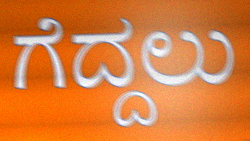
ಗೆದ್ದಲು